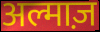
अल्माज़